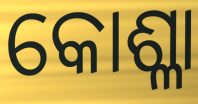
କୋଶ୍ଳା